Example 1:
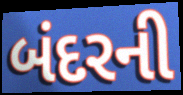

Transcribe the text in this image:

બંદરની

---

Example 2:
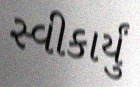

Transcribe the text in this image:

સ્વીકાર્યું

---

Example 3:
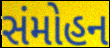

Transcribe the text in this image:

સંમોહન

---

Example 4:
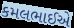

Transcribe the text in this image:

કમલભાઈએ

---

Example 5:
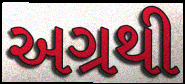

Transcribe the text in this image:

અગ્રથી